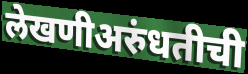
लेखणीअरुंधतीची